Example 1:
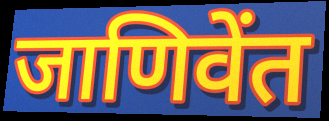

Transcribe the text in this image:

जाणिवेंत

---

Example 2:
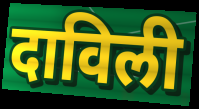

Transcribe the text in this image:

दाविली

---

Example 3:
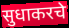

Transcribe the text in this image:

सुधाकरचे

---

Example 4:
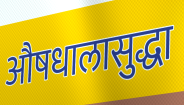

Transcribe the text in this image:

औषधालासुद्धा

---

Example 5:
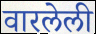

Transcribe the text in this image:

वारलेली